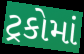
ટ્રકોમાં